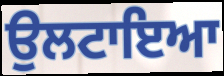
ਉਲਟਾਇਆ